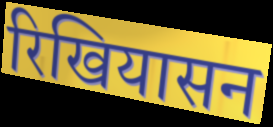
रिखियासन